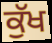
ਕੁੱਖ